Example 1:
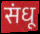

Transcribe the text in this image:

संधू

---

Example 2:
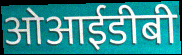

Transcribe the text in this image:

ओआईडीबी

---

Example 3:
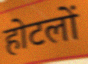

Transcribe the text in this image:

होटलों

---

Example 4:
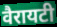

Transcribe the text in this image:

वैरायटी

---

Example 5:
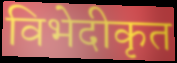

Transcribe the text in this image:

विभेदीकृत